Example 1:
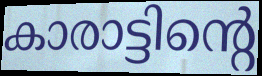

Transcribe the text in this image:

കാരാട്ടിന്റെ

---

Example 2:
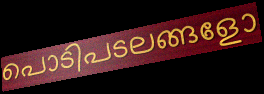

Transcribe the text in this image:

പൊടിപടലങ്ങളോ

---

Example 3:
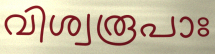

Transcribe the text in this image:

വിശ്വരൂപാഃ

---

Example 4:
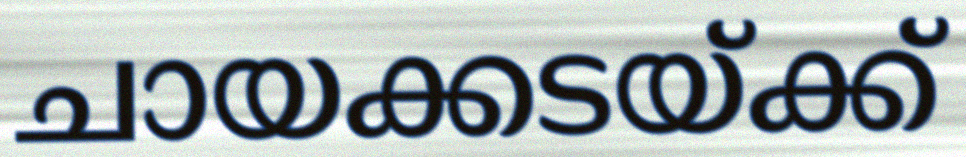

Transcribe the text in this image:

ചായക്കടയ്ക്ക്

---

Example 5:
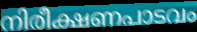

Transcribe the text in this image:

നിരീക്ഷണപാടവം